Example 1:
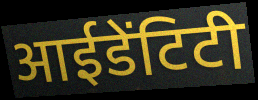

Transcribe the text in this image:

आईडेंटिटी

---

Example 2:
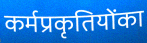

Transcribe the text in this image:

कर्मप्रकृतियोंका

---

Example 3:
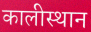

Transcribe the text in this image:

कालीस्थान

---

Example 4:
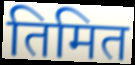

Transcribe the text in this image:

तिमित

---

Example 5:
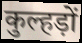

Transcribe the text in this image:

कुल्हड़ों